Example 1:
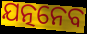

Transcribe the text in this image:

ଯତ୍ନନେବ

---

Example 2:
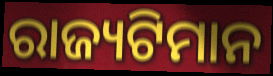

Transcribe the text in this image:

ରାଜ୍ୟଟିମାନ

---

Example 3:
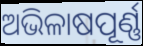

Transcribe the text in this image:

ଅଭିଳାଷପୂର୍ଣ୍ଣ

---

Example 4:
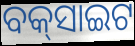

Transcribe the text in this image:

ବକ୍‌ସାଇଟ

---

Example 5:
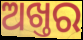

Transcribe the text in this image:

ଅଖ୍ତର